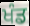
ਖੰਡ